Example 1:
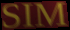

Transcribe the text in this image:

SIM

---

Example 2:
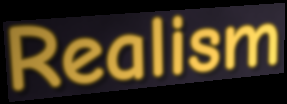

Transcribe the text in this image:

Realism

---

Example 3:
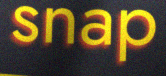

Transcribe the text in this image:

snap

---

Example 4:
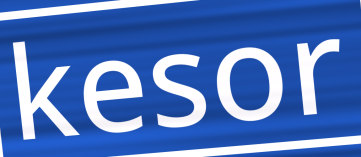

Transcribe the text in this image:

kesor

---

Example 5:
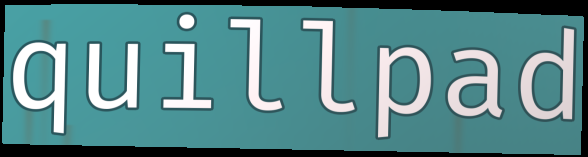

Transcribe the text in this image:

quillpad